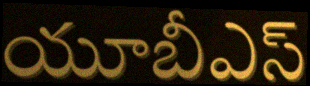
యూబీఎస్